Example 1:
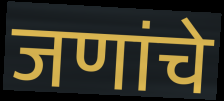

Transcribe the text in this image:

जणांचे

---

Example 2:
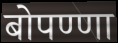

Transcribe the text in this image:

बोपण्णा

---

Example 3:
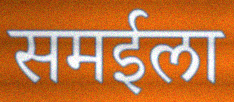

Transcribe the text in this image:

समईला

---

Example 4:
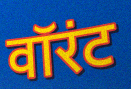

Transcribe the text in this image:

वॉरंट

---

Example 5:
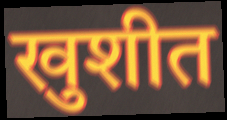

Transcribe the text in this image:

खुशीत